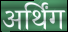
अर्थिंग